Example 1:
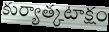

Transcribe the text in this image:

కుర్యాత్కటాక్షం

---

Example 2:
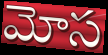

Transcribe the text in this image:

మోస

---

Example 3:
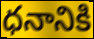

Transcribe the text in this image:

ధనానికి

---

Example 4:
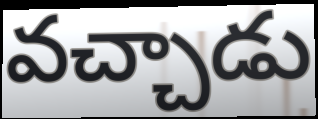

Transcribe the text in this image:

వచ్చాడు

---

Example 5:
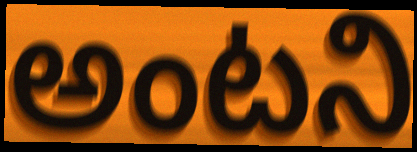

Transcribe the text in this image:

అంటని